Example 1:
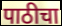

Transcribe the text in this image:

पाठीचा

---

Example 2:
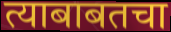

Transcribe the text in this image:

त्याबाबतचा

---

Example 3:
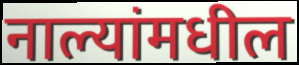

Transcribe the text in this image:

नाल्यांमधील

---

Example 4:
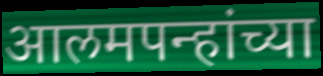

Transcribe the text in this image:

आलमपन्हांच्या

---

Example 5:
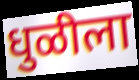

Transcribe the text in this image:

धुळीला